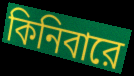
কিনিবারে